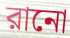
রানো